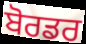
ਬੋਰਡਰ